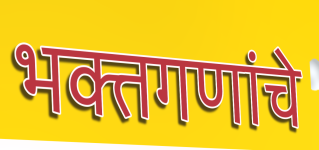
भक्तगणांचे